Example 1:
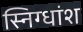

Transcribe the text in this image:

स्निग्धांश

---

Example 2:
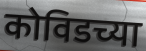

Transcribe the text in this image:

कोविडच्या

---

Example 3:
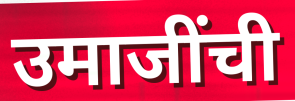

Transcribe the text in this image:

उमाजींची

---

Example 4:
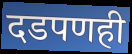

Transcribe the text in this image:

दडपणही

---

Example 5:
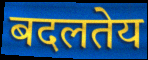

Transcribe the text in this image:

बदलतेय